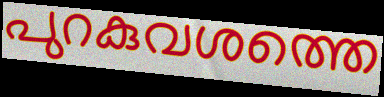
പുറകുവശത്തെ